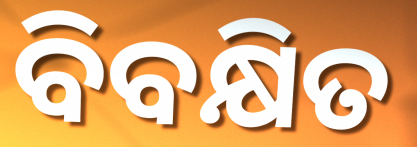
ବିବକ୍ଷିତ